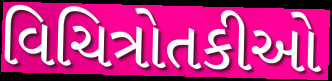
વિચિત્રોતકીઓ